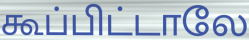
கூப்பிட்டாலே